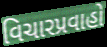
વિચારપ્રવાહો